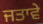
ਜਤਾਵੇ